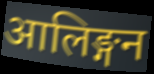
आलिङ्गन